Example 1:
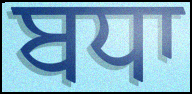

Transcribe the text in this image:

ਬਧਾ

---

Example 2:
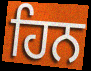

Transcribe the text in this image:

ਹਿਨ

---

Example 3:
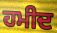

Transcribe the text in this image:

ਹਮੀਦ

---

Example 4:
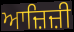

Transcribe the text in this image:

ਆਜ਼ਿਜ਼ੀ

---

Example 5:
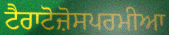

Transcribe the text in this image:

ਟੈਰਾਟੋਜ਼ੋਸਪਰਮੀਆ